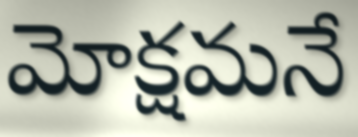
మోక్షమనే